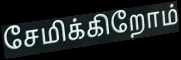
சேமிக்கிறோம்